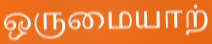
ஒருமையாற்